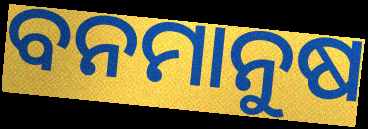
ବନମାନୁଷ